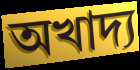
অখাদ্য